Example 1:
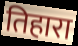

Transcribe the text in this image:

तिहारा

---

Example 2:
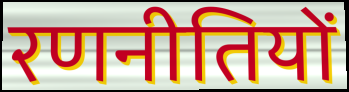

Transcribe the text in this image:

रणनीतियों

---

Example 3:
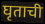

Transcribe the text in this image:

घृताची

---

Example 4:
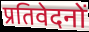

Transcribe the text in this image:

प्रतिवेदनों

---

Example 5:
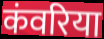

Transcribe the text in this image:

कंवरिया